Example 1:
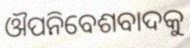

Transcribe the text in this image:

ଔପନିବେଶବାଦକୁ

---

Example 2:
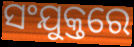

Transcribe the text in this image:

ସଂଯୁକ୍ତରେ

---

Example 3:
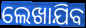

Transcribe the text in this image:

ଲେଖାଯିବ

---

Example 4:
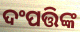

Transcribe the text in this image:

ଦଂପତ୍ତିଙ୍କ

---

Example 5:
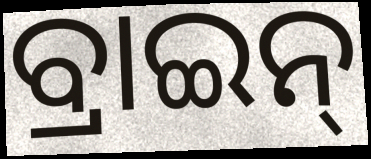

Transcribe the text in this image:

ବ୍ରାଇନ୍